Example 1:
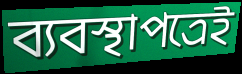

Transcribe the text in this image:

ব্যবস্থাপত্রেই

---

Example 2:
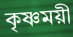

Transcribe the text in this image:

কৃষ্ণময়ী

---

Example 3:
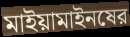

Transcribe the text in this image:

মাইয়ামাইনষের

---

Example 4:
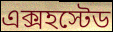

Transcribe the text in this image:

এক্সহস্টেড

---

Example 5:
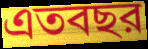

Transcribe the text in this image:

এতবছর